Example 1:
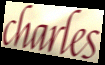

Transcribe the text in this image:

charles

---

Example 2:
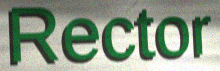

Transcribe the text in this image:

Rector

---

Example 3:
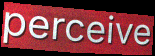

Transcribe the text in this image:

perceive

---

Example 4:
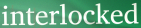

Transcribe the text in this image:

interlocked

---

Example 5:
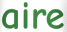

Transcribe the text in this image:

aire